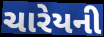
ચારેયની